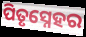
ପିତୃସ୍ନେହର